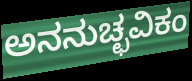
ಅನನುಚ್ಛವಿಕಂ